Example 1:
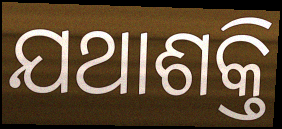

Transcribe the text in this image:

ଯଥାଶକ୍ତି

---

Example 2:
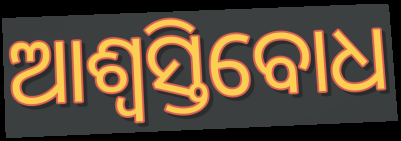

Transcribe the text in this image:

ଆଶ୍ଵସ୍ତିବୋଧ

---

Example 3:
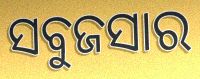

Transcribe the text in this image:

ସବୁଜସାର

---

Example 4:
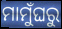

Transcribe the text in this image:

ମାମୁଁଘରୁ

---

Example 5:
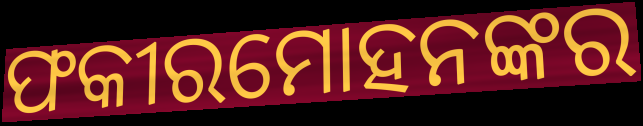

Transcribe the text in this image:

ଫକୀରମୋହନଙ୍କର